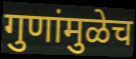
गुणांमुळेच